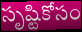
సృష్టికోసం